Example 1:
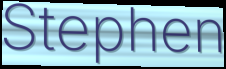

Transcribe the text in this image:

Stephen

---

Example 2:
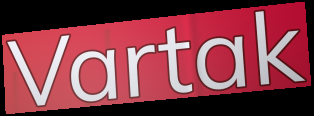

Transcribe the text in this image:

Vartak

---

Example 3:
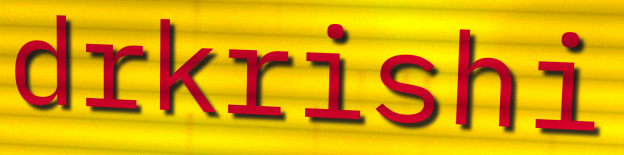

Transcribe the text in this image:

drkrishi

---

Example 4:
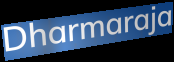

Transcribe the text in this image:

Dharmaraja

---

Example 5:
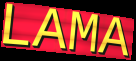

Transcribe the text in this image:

LAMA